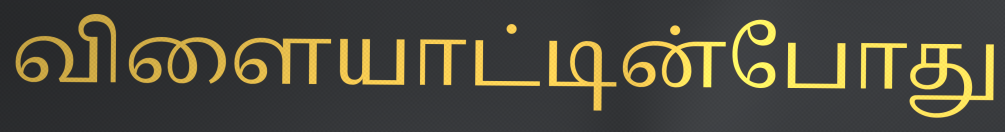
விளையாட்டின்போது